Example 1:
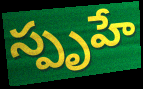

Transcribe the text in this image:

స్పృహే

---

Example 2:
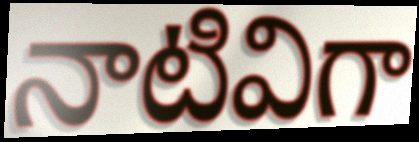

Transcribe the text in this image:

నాటివిగా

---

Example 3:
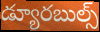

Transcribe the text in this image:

డ్యూరబుల్స్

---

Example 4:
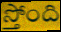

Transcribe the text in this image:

స్తోంది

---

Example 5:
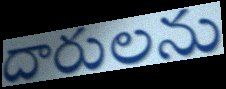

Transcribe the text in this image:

దారులను